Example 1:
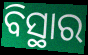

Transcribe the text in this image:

ବିସ୍ଥାର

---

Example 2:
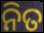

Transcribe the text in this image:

ନିତ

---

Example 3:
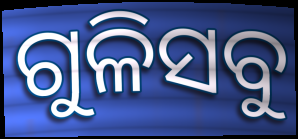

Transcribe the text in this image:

ଗୁଳିସବୁ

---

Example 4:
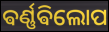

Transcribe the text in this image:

ଵର୍ଣ୍ଣଵିଲୋପ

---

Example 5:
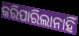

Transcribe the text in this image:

କରିପାରିଲାନାହିଁ